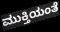
ಮುಕ್ತಿಯಂತೆ